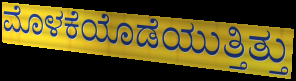
ಮೊಳಕೆಯೊಡೆಯುತ್ತಿತ್ತು